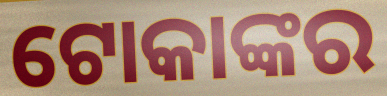
ଟୋକାଙ୍କର